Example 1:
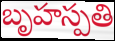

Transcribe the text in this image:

బృహస్పతి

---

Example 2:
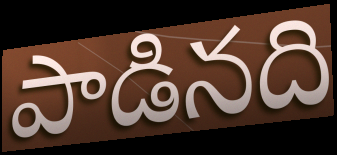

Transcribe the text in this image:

పాడినది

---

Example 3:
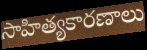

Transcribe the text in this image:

సాహిత్యకారణాలు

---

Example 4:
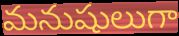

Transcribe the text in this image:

మనుషులుగా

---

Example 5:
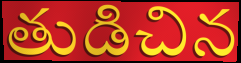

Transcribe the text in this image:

తుడిచిన